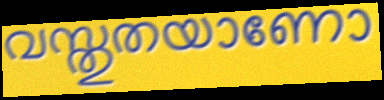
വസ്തുതയാണോ